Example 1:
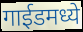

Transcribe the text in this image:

गाईडमध्ये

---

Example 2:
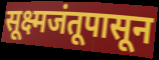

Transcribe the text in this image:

सूक्ष्मजंतूपासून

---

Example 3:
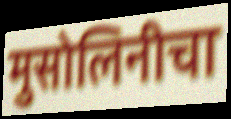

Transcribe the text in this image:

मुसोलिनीचा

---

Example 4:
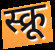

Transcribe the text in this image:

स्क्रू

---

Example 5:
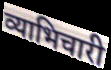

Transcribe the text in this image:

व्याभिचारी